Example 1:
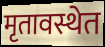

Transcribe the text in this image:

मृतावस्थेत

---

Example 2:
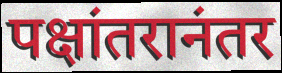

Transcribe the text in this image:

पक्षांतरानंतर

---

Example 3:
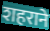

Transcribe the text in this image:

शहराने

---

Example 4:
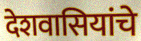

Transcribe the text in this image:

देशवासियांचे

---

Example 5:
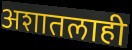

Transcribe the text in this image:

अशातलाही